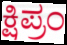
ಕ್ಷಿಪ್ರಂ